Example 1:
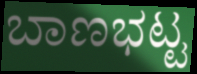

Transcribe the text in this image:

ಬಾಣಭಟ್ಟ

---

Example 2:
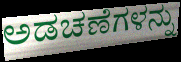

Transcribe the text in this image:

ಅಡಚಣೆಗಳನ್ನು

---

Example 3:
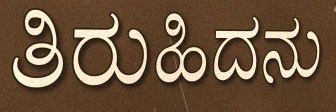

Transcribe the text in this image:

ತಿರುಹಿದನು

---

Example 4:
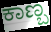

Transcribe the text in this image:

ಕಾಣ್ಬ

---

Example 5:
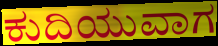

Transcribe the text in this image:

ಕುದಿಯುವಾಗ